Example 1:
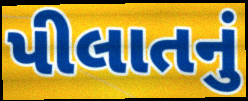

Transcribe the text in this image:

પીલાતનું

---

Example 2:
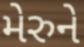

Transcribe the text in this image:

મેરુને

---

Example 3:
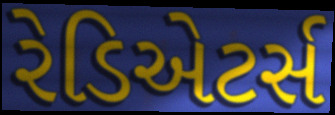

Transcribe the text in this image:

રેડિએટર્સ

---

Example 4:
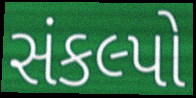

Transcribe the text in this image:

સંકલ્પો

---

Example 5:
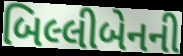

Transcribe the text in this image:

બિલ્લીબેનની